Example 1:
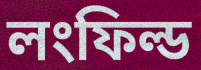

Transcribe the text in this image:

লংফিল্ড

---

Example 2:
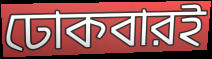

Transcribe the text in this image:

ঢোকবারই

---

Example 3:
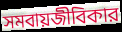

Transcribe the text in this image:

সমবায়জীবিকার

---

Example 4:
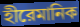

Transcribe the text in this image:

হীরেমানিক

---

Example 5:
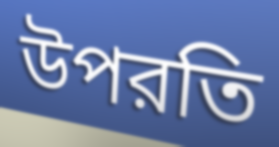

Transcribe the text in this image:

উপরতি